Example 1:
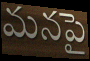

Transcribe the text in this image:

మనపై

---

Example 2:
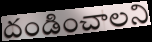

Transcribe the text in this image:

దండించాలని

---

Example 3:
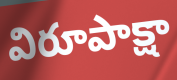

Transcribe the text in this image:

విరూపాక్షా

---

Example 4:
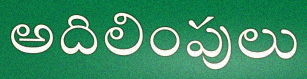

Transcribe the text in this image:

అదిలింపులు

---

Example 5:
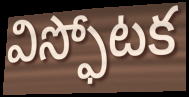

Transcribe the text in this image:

విస్ఫోటక